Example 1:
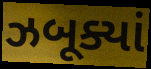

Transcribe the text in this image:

ઝબૂક્યાં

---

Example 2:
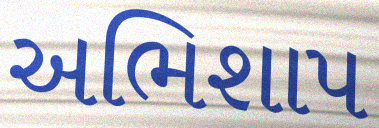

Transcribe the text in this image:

અભિશાપ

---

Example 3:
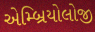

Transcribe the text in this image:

એમ્બ્રિયોલોજી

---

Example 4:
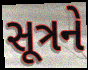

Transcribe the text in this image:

સૂત્રને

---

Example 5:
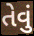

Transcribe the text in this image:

તેવું